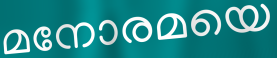
മനോരമയെ